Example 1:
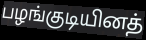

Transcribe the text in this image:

பழங்குடியினத்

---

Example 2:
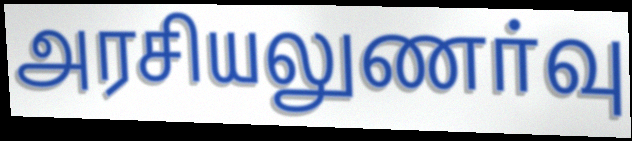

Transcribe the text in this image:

அரசியலுணர்வு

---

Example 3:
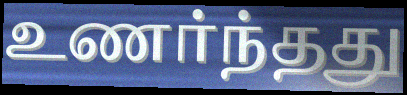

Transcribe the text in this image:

உணர்ந்தது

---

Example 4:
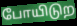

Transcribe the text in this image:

போயிடுற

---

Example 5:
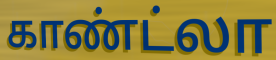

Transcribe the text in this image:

காண்ட்லா